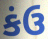
કંઉ